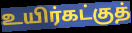
உயிர்கட்குத்